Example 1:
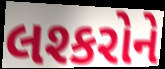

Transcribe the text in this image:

લશ્કરોને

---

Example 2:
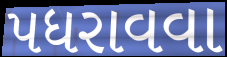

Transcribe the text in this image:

પધરાવવા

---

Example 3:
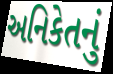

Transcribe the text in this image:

અનિકેતનું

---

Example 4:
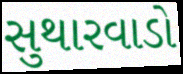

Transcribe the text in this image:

સુથારવાડો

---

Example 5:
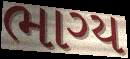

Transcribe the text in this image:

ભાગ્ય